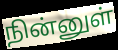
நின்னுள்